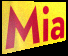
Mia